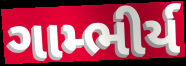
ગામ્ભીર્ય